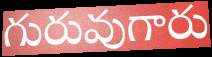
గురువుగారు